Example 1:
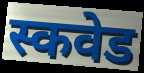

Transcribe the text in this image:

स्कवेड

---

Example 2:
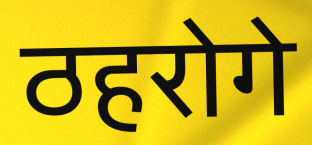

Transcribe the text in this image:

ठहरोगे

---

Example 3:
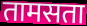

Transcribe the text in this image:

तामसता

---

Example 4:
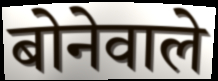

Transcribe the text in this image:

बोनेवाले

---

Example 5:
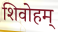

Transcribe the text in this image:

शिवोहम्